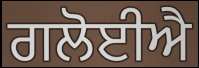
ਗਲੋਈਐ